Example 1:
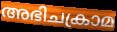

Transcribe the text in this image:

അഭിചക്രാമ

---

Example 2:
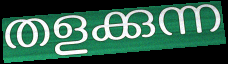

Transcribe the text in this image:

തളക്കുന്ന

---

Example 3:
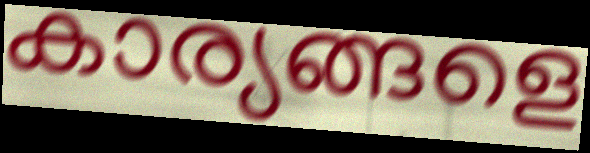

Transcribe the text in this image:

കാര്യങ്ങളെ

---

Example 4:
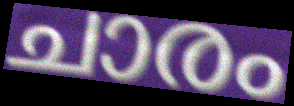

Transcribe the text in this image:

ചാരം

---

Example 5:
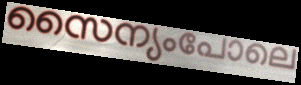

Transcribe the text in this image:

സൈന്യംപോലെ